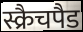
स्क्रैचपैड